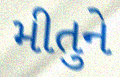
મીતુને